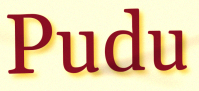
Pudu